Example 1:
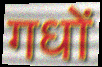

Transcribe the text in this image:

गधों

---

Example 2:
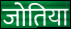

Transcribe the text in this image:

जोतिया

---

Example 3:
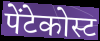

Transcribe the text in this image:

पेंटेकोस्ट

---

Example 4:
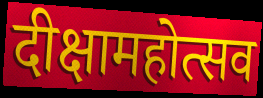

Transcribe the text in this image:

दीक्षामहोत्सव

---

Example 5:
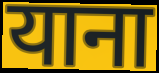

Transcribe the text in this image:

याना